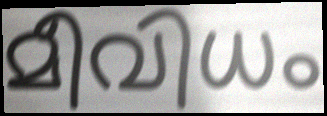
മീവിധം